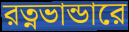
রত্নভান্ডারে